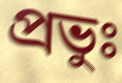
প্রভুঃ